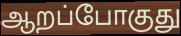
ஆறப்போகுது